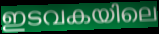
ഇടവകയിലെ